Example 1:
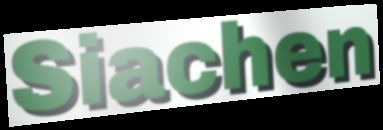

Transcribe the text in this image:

Siachen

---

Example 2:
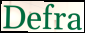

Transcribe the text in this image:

Defra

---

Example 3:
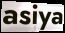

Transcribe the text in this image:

asiya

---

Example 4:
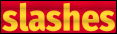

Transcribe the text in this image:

slashes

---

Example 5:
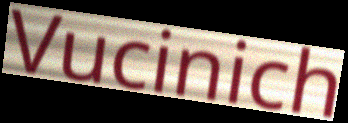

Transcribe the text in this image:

Vucinich